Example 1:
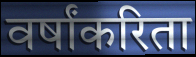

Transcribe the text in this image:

वर्षांकरिता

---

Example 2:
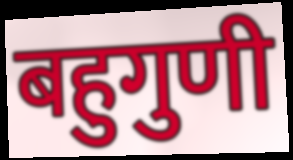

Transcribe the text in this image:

बहुगुणी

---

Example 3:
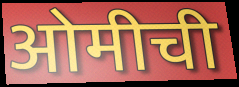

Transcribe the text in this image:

ओमीची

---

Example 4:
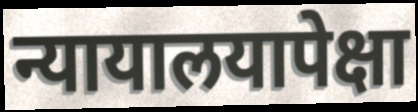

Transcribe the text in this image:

न्यायालयापेक्षा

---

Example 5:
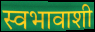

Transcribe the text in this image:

स्वभावाशी